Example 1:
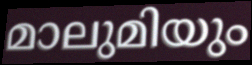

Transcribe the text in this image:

മാലുമിയും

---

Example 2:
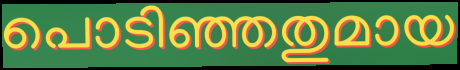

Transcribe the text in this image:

പൊടിഞ്ഞതുമായ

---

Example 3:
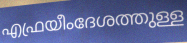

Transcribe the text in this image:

എഫ്രയീംദേശത്തുള്ള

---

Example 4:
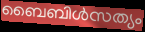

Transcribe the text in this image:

ബൈബിൾസത്യം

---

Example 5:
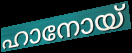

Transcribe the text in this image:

ഹാനോയ്